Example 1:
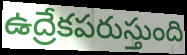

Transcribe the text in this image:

ఉద్రేకపరుస్తుంది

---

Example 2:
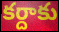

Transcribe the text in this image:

కర్దాకు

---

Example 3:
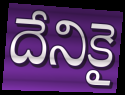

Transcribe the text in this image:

దేనికై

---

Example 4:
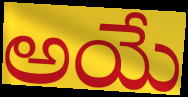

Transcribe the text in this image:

అయే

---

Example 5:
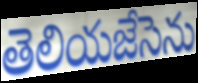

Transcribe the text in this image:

తెలియజేసెను